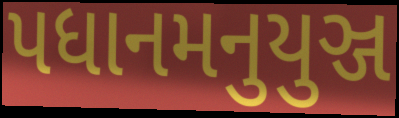
પધાનમનુયુઞ્જ